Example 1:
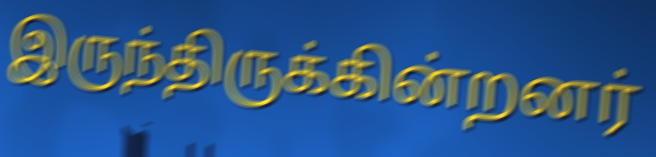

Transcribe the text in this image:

இருந்திருக்கின்றனர்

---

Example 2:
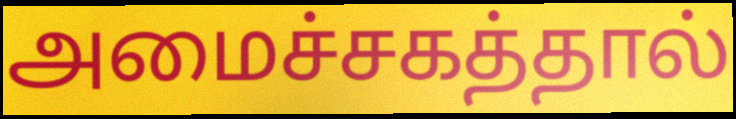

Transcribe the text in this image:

அமைச்சகத்தால்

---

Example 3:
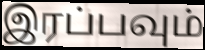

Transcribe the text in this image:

இரப்பவும்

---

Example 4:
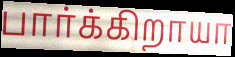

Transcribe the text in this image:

பார்க்கிறாயா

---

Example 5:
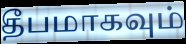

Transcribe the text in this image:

தீபமாகவும்